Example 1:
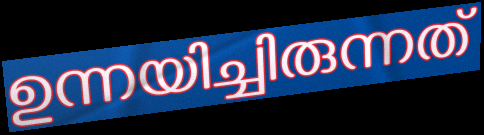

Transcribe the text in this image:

ഉന്നയിച്ചിരുന്നത്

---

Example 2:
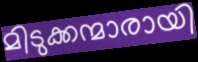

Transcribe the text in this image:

മിടുക്കന്മാരായി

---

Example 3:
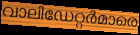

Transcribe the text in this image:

വാലിഡേറ്റർമാരെ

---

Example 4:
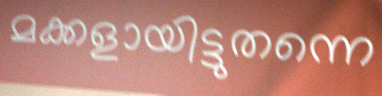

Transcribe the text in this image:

മക്കളായിട്ടുതന്നെ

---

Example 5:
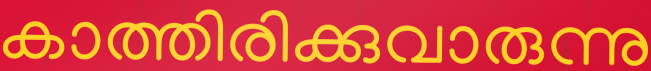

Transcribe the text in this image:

കാത്തിരിക്കുവാരുന്നു